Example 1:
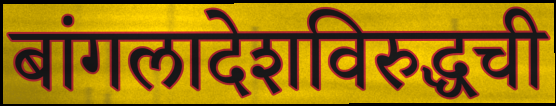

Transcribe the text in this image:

बांगलादेशविरुद्धची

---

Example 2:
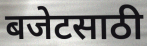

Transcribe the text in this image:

बजेटसाठी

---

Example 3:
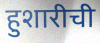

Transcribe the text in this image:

हुशारीची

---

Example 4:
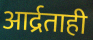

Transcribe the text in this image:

आर्द्रताही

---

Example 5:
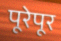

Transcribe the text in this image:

पूरेपूर